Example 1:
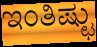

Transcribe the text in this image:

ಇಂತಿಷ್ಟು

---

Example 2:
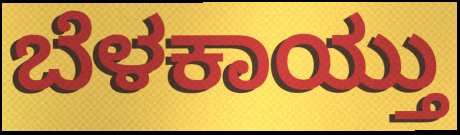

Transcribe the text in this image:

ಬೆಳಕಾಯ್ತು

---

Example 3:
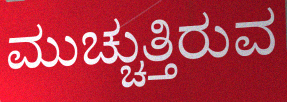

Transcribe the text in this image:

ಮುಚ್ಚುತ್ತಿರುವ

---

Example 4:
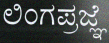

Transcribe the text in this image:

ಲಿಂಗಪ್ರಜ್ಞೆ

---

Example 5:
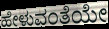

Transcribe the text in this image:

ಹೇಳುವಂತೆಯೇ